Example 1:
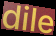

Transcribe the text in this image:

dile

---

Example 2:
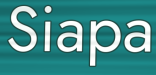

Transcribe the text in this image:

Siapa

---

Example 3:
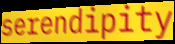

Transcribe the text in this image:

serendipity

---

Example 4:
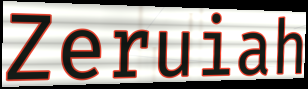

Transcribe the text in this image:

Zeruiah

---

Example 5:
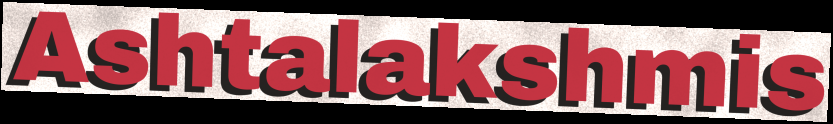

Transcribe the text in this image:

Ashtalakshmis